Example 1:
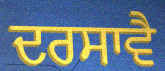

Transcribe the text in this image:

ਦਰਸਾਵੈ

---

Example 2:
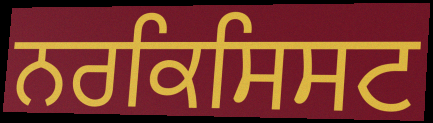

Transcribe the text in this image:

ਨਰਕਿਸਿਸਟ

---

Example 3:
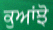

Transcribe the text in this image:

ਕੁਆਂਝੋ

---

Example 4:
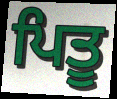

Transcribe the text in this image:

ਪਿਤੂ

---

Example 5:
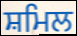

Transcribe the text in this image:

ਸ਼ਮਿਲ